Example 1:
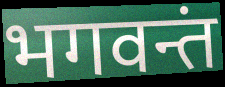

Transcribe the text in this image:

भगवन्तं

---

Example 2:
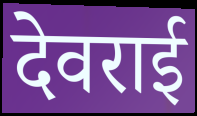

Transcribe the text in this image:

देवराई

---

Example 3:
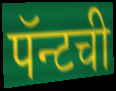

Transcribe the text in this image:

पॅन्टची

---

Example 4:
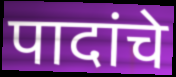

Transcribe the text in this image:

पादांचे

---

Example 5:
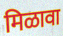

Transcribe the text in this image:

मिळावा